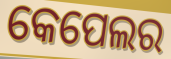
କେପେଲର